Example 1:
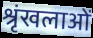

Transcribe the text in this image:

श्रृंखलाओं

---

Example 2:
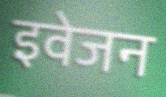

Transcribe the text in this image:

इवेजन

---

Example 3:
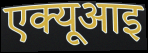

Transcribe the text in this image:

एक्यूआइ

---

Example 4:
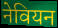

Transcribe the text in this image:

नेवियन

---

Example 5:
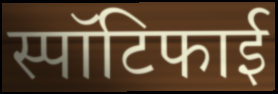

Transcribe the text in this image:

स्पॉटिफाई